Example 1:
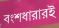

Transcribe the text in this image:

বংশধারারই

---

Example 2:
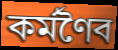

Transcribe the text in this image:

কর্মণৈব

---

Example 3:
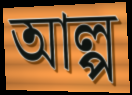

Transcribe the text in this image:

আল্প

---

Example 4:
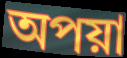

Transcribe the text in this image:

অপয়া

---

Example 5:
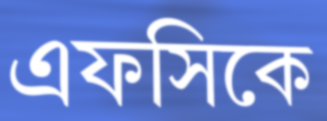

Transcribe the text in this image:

এফসিকে